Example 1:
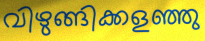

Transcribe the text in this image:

വിഴുങ്ങിക്കളഞ്ഞു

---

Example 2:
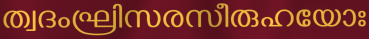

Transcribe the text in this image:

ത്വദംഘ്രിസരസീരുഹയോഃ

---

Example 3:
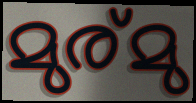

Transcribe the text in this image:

മുര്മു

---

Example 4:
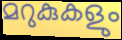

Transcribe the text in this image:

മറുകുകളും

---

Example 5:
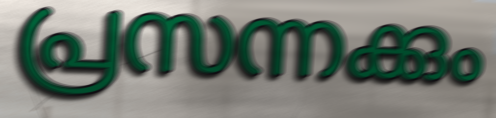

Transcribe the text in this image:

പ്രസന്നക്കും